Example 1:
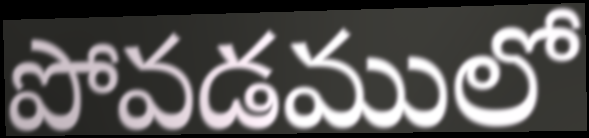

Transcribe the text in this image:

పోవడములో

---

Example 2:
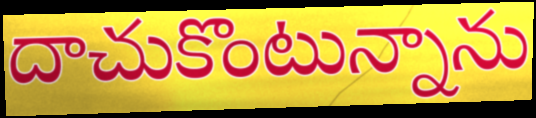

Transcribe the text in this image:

దాచుకొంటున్నాను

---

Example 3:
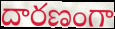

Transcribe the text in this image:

దారణంగా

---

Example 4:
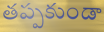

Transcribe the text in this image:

తప్పకుండా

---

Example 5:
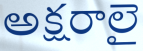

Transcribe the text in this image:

అక్షరాలై